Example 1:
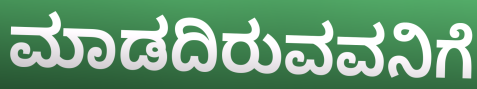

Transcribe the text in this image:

ಮಾಡದಿರುವವನಿಗೆ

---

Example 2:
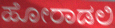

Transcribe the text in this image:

ಹೋರಾಡಲಿ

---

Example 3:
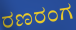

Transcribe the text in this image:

ರಣರಂಗ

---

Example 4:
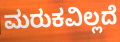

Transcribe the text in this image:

ಮರುಕವಿಲ್ಲದೆ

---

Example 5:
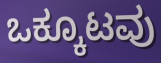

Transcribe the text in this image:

ಒಕ್ಕೂಟವು